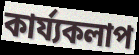
কার্য্যকলাপ